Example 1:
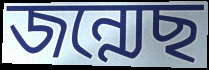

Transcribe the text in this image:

জন্মেছ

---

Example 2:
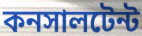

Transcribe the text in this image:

কনসালটেন্ট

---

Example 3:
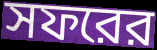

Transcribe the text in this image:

সফরের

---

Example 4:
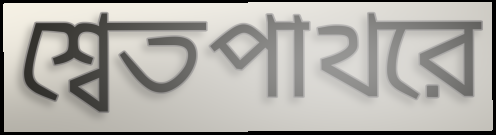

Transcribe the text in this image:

শ্বেতপাথরে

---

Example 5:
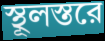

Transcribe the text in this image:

স্থূলস্তরে